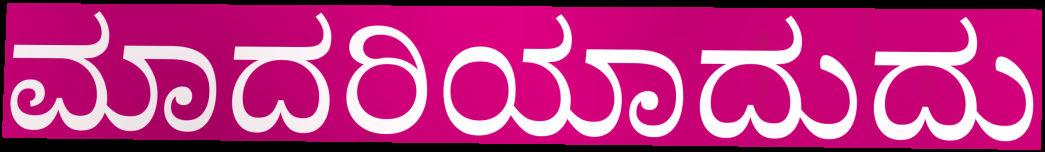
ಮಾದರಿಯಾದುದು